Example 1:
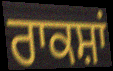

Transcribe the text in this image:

ਰਾਕਸ਼ਾਂ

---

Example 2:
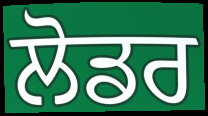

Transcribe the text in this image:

ਲੋਡਰ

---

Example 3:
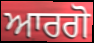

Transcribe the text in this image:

ਆਰਗੋ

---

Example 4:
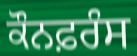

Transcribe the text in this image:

ਕੌਨਫ਼ਰੰਸ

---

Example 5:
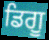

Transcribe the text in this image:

ਡਿਗੂ